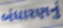
બંધારણનું